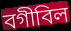
বগীবিল